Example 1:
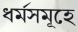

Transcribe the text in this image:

ধর্মসমূহে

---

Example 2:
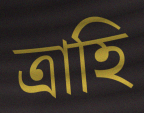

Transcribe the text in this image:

ত্রাহি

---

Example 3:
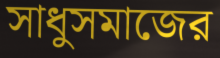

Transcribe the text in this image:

সাধুসমাজের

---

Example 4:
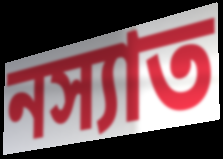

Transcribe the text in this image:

নস্যাত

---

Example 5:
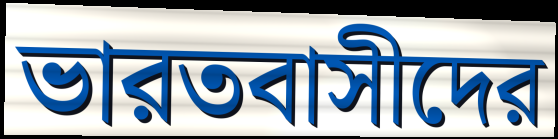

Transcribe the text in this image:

ভারতবাসীদের